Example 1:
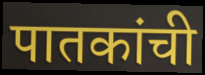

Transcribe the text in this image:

पातकांची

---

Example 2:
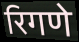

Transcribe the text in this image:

रिगणे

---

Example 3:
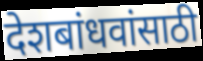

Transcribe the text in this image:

देशबांधवांसाठी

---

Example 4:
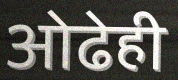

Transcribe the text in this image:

ओढेही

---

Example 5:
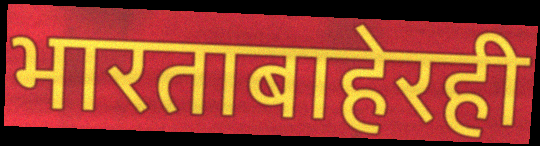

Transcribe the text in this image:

भारताबाहेरही